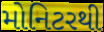
મોનિટરથી